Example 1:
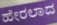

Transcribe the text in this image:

ಹೇರಲಾದ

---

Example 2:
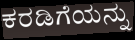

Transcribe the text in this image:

ಕರಡಿಗೆಯನ್ನು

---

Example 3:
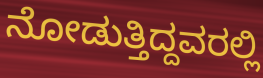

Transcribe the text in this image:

ನೋಡುತ್ತಿದ್ದವರಲ್ಲಿ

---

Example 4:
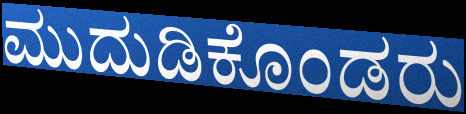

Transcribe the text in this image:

ಮುದುಡಿಕೊಂಡರು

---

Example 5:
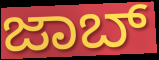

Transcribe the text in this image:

ಜಾಬ್